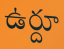
ఉర్దూ